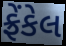
ફ્રેંકેલ